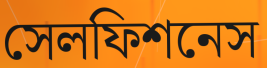
সেলফিশনেস